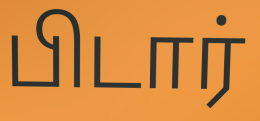
பிடார்